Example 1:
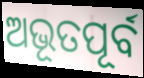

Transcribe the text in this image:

ଅଭୂତପୂର୍ବ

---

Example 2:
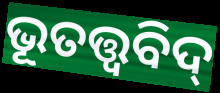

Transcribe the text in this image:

ଭୂତତ୍ତ୍ବବିଦ୍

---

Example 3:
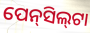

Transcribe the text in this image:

ପେନ୍‌ସିଲ୍‍ଟା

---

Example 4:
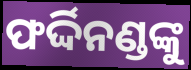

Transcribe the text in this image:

ଫର୍ଦ୍ଦିନଣ୍ଡଙ୍କୁ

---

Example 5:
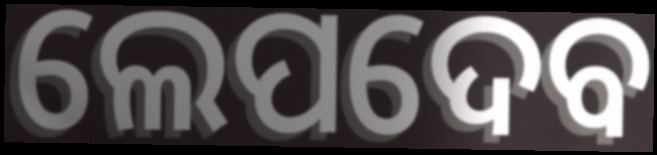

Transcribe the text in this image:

ଲେପଦେବ